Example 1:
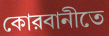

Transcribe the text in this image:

কোরবানীতে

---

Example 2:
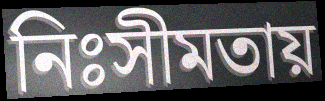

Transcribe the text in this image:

নিঃসীমতায়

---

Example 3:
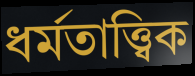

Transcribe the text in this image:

ধর্মতাত্ত্বিক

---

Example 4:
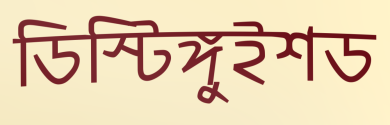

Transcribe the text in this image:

ডিস্টিঙ্গুইশড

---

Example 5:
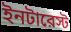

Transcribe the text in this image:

ইনটারেস্ট